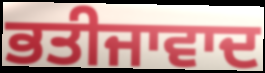
ਭਤੀਜਾਵਾਦ